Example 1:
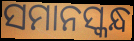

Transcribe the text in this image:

ସମାନସ୍କନ୍ଧ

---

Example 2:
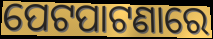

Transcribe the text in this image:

ପେଟପାଟଣାରେ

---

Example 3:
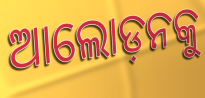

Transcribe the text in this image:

ଆଲୋଡ଼ନକୁ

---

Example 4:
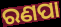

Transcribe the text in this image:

ରଣପା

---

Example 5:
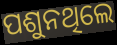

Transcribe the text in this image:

ପଶୁନଥିଲେ